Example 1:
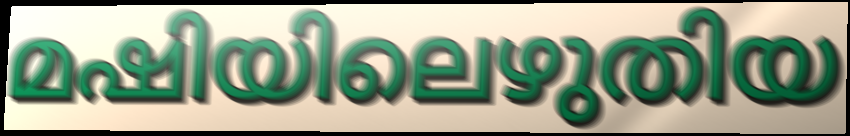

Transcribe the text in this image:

മഷിയിലെഴുതിയ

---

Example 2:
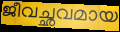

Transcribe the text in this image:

ജീവച്ഛവമായ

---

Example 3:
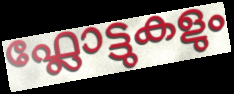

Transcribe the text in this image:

ഫ്ലോട്ടുകളും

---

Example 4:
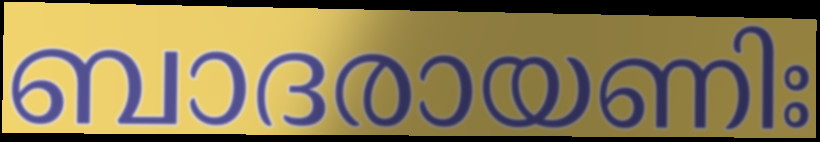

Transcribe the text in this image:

ബാദരായണിഃ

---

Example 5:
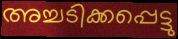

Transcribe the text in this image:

അച്ചടിക്കപ്പെട്ടു